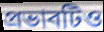
প্রভাবটিও